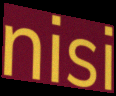
nisi